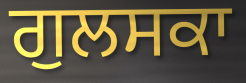
ਗੁਲਸਕਾ